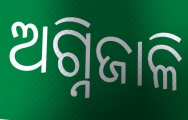
ଅଗ୍ନିଜାଳି